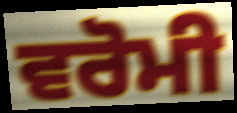
ਵਰੋਮੀ